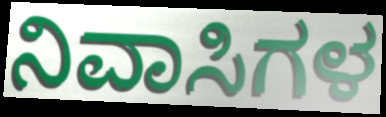
ನಿವಾಸಿಗಳ